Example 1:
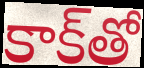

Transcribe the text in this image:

కాక్‌తో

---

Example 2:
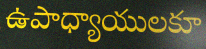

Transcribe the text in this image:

ఉపాధ్యాయులకూ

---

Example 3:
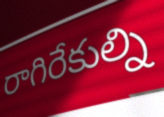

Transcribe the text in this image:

రాగిరేకుల్ని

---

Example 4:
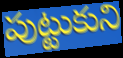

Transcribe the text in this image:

పుట్టుకుని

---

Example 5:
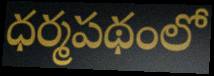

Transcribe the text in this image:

ధర్మపథంలో